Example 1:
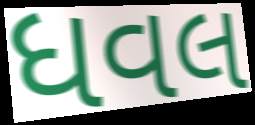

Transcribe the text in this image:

ધવલ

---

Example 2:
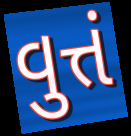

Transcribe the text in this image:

વુત્તં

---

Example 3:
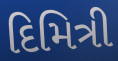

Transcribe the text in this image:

દિમિત્રી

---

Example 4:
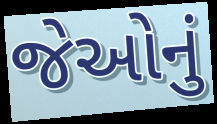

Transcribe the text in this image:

જેઓનું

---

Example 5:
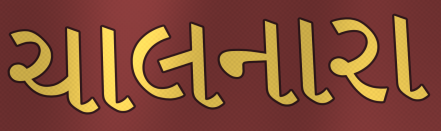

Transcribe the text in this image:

ચાલનારા